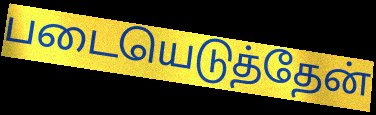
படையெடுத்தேன்